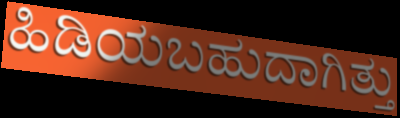
ಹಿಡಿಯಬಹುದಾಗಿತ್ತು